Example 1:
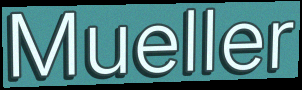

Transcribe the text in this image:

Mueller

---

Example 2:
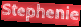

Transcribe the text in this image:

Stephenie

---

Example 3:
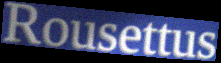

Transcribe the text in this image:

Rousettus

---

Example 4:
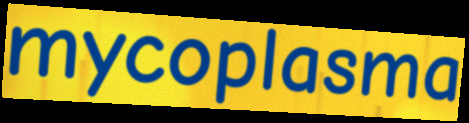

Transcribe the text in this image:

mycoplasma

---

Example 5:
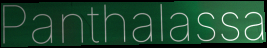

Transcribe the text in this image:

Panthalassa